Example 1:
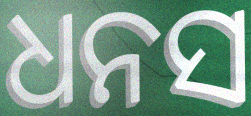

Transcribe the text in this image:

ଧନସ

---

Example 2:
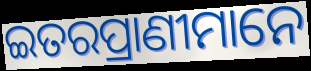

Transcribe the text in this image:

ଇତରପ୍ରାଣୀମାନେ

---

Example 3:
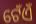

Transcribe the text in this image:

ଟେଁଏଁ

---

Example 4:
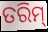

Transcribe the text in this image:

ତରିମ୍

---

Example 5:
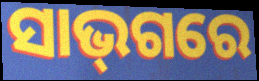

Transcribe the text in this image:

ସାଭ୍‌ଗରେ